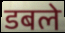
डबले